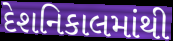
દેશનિકાલમાંથી